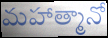
మహాత్మానో